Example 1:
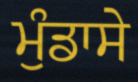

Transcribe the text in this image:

ਮੁੰਡਾਸੇ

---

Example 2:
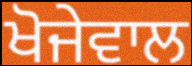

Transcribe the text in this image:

ਖੋਜੇਵਾਲ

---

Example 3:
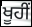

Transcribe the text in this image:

ਖੂਹੀਂ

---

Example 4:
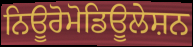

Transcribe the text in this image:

ਨਿਊਰੋਮੋਡਿਊਲੇਸ਼ਨ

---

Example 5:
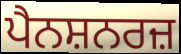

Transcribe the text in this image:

ਪੈਨਸ਼ਨਰਜ਼